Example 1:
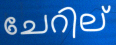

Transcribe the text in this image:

ചേറില്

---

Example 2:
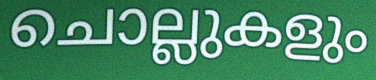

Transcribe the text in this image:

ചൊല്ലുകളും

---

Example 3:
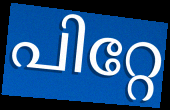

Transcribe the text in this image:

പിറ്റേ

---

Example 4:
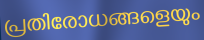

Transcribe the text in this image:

പ്രതിരോധങ്ങളെയും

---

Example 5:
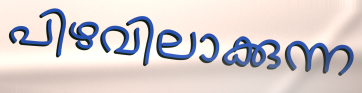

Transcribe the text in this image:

പിഴവിലാക്കുന്ന